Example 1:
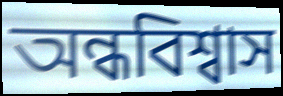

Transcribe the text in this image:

অন্ধবিশ্বাস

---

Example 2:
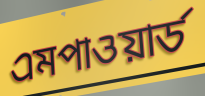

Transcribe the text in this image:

এমপাওয়ার্ড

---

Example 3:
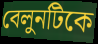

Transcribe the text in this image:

বেলুনটিকে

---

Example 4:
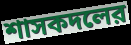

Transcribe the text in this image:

শাসকদলের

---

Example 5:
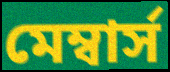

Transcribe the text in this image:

মেম্বার্স